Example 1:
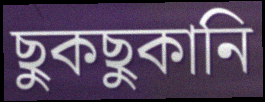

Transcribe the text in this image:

ছুকছুকানি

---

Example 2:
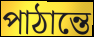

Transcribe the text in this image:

পাঠান্তে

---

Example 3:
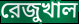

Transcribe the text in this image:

রেজুখাল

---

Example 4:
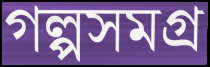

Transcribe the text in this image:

গল্পসমগ্র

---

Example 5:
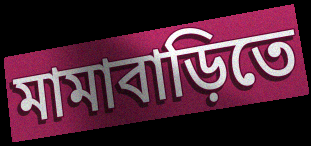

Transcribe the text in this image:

মামাবাড়িতে